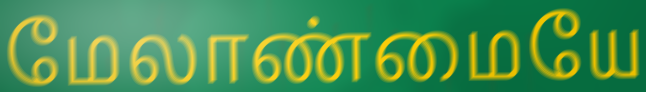
மேலாண்மையே